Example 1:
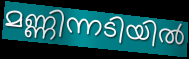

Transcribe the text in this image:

മണ്ണിന്നടിയിൽ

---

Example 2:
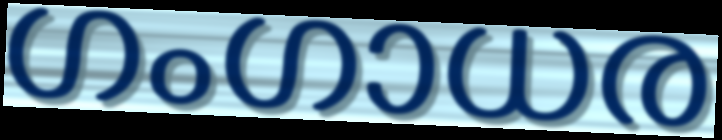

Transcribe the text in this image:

ഗംഗാധര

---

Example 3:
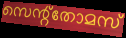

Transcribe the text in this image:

സെന്റ്തോമസ്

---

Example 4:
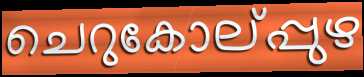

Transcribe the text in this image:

ചെറുകോല്പ്പുഴ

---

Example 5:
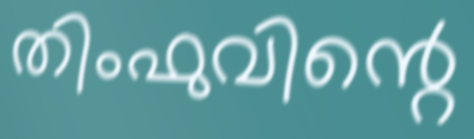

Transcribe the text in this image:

തിംഫുവിന്റെ